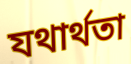
যথাৰ্থতা